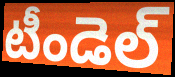
టీండెల్